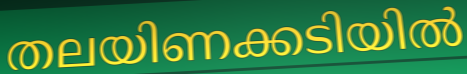
തലയിണക്കടിയിൽ